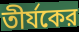
তীর্যকের